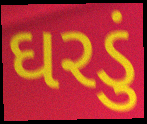
ઘરડું